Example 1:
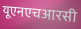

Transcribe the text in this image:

यूएनएचआरसी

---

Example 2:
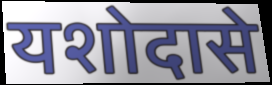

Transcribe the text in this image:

यशोदासे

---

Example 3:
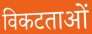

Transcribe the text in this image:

विकटताओं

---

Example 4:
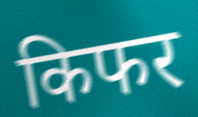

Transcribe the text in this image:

किफर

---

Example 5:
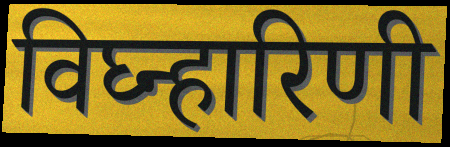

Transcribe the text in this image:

विघ्न्हारिणी